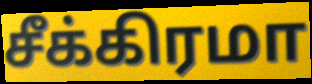
சீக்கிரமா